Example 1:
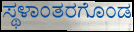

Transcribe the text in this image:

ಸ್ಥಳಾಂತರಗೊಂಡ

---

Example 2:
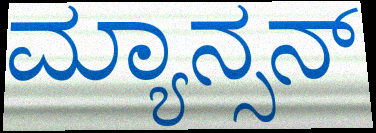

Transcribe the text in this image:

ಮ್ಯಾನ್ಸನ್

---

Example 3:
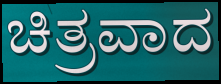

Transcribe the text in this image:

ಚಿತ್ರವಾದ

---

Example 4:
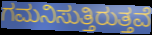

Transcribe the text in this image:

ಗಮನಿಸುತ್ತಿರುತ್ತವೆ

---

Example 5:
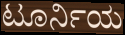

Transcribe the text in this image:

ಟೂರ್ನಿಯ